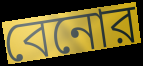
বেনোর